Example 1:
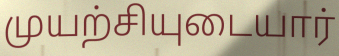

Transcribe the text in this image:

முயற்சியுடையார்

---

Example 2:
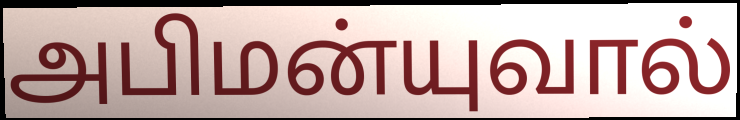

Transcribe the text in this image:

அபிமன்யுவால்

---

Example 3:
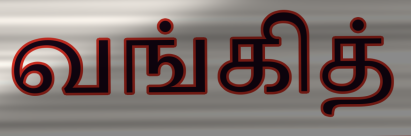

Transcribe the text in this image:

வங்கித்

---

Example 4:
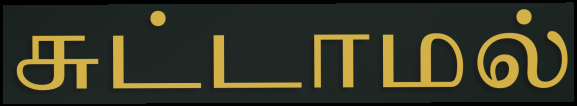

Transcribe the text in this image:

சுட்டாமல்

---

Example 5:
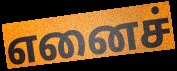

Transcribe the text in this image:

எனைச்